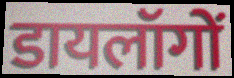
डायलॉगों